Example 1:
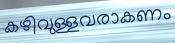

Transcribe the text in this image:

കഴിവുള്ളവരാകണം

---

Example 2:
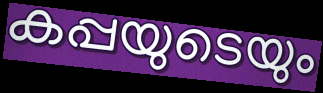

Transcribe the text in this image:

കപ്പയുടെയും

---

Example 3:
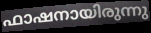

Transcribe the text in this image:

ഫാഷനായിരുന്നു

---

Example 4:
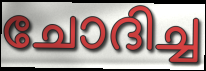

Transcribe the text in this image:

ചോദിച്ച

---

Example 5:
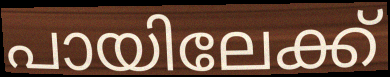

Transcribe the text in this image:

പായിലേക്ക്